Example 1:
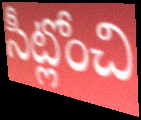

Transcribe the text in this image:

సీట్లోంచి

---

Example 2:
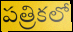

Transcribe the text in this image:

పత్రికలో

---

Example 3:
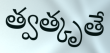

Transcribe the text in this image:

త్వత్కృతే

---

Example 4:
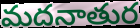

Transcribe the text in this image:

మదనాతుర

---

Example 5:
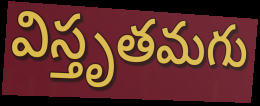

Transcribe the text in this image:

విస్తృతమగు